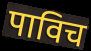
पाविच